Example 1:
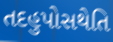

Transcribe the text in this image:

તદહુપોસથેતિ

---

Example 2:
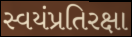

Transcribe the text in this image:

સ્વયંપ્રતિરક્ષા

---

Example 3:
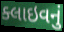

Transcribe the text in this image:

ક્લાઇવનું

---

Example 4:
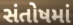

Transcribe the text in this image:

સંતોષમાં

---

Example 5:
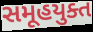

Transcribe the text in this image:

સમૂહયુક્ત